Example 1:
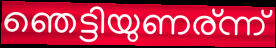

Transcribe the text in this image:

ഞെട്ടിയുണര്ന്ന്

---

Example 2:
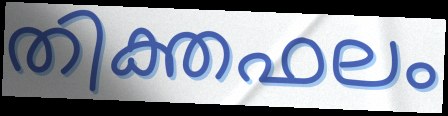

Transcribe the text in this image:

തിക്തഫലം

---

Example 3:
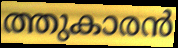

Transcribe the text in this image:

ത്തുകാരൻ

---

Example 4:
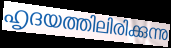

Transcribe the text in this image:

ഹൃദയത്തിലിരിക്കുന്നു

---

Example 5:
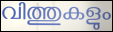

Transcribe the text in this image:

വിത്തുകളും